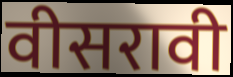
वीसरावी